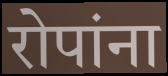
रोपांना